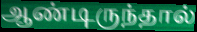
ஆண்டிருந்தால்